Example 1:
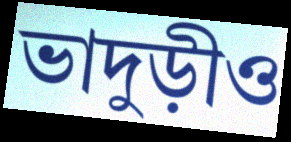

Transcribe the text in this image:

ভাদুড়ীও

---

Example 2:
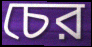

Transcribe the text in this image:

চের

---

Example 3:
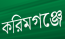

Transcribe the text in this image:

করিমগঞ্জে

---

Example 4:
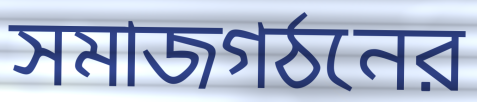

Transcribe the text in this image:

সমাজগঠনের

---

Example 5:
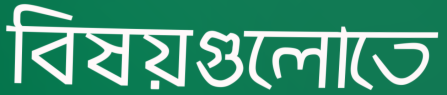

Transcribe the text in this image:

বিষয়গুলোতে